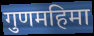
गुणमहिमा